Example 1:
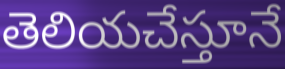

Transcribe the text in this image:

తెలియచేస్తూనే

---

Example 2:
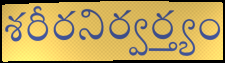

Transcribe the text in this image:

శరీరనిర్వర్త్యం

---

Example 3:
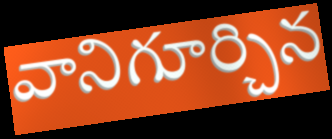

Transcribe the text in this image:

వానిగూర్చిన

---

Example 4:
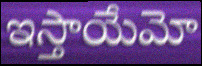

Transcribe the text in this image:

ఇస్తాయేమో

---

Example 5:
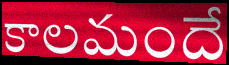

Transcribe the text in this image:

కాలమందే